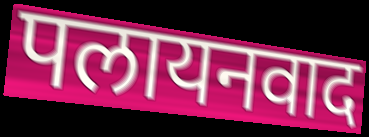
पलायनवाद